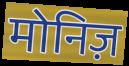
मोनिज़